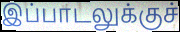
இப்பாடலுக்குச்